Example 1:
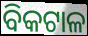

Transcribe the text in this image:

ବିକଟାଳ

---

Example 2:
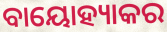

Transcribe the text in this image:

ବାୟୋହ୍ୟାକର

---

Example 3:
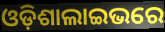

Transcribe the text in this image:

ଓଡ଼ିଶାଲାଇଭରେ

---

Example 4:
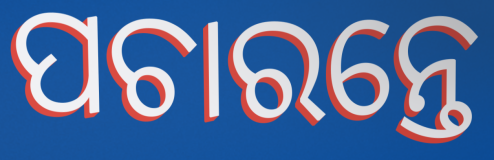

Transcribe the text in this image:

ପଚାରନ୍ତେ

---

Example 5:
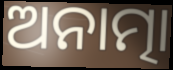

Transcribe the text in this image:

ଅନାତ୍ମା